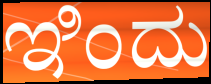
ಇಿಂದು